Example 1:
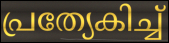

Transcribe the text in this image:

പ്രത്യേകിച്ച്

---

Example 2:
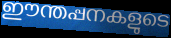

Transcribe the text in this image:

ഈന്തപ്പനകളുടെ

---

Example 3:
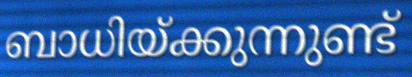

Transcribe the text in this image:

ബാധിയ്ക്കുന്നുണ്ട്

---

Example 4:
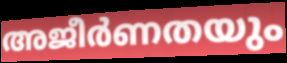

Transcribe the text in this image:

അജീർണതയും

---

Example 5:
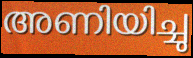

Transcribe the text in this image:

അണിയിച്ചു